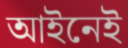
আইনেই